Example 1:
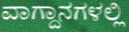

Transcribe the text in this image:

ವಾಗ್ದಾನಗಳಲ್ಲಿ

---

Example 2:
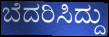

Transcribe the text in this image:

ಬೆದರಿಸಿದ್ದು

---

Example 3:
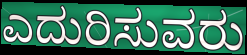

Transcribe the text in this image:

ಎದುರಿಸುವರು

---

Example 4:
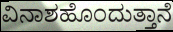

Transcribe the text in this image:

ವಿನಾಶಹೊಂದುತ್ತಾನೆ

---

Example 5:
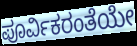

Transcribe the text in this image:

ಪೂರ್ವಿಕರಂತೆಯೇ